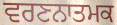
ਵਰਣਨਾਤਮਕ